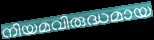
നിയമവിരുദ്ധമായ